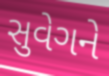
સુવેગને